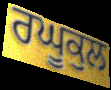
ਰਘੂਕੁਲ